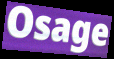
Osage